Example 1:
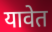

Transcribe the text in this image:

यावेत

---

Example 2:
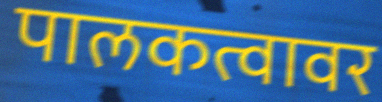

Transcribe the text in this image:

पालकत्वावर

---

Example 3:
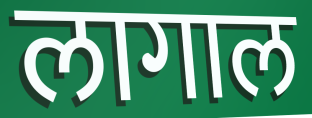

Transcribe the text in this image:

लागाल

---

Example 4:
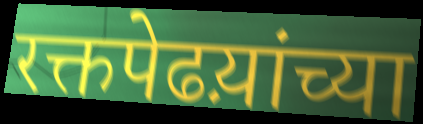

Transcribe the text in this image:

रक्तपेढय़ांच्या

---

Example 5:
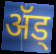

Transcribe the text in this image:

ॲड्